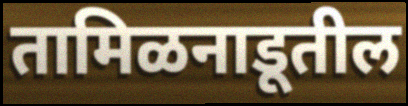
तामिळनाडूतील